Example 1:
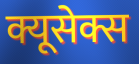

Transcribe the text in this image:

क्यूसेक्स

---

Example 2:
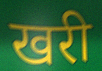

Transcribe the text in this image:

खरी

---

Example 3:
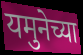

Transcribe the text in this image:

यमुनेच्या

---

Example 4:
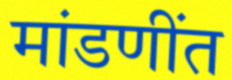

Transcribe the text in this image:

मांडणींत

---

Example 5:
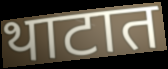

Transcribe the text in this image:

थाटात